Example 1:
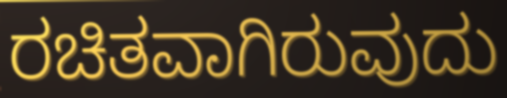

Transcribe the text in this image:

ರಚಿತವಾಗಿರುವುದು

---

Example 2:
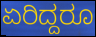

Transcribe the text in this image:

ಏರಿದ್ದರೂ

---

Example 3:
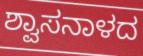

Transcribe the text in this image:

ಶ್ವಾಸನಾಳದ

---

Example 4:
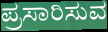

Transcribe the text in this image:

ಪ್ರಸಾರಿಸುವ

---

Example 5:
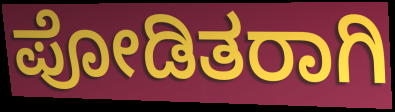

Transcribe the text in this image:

ಪೋಡಿತರಾಗಿ